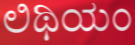
ಲಿಥಿಯಂ